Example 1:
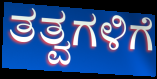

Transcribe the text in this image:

ತತ್ವಗಳಿಗೆ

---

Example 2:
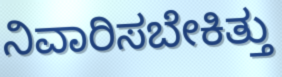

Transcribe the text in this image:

ನಿವಾರಿಸಬೇಕಿತ್ತು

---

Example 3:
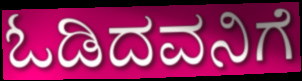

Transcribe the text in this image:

ಓಡಿದವನಿಗೆ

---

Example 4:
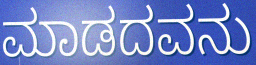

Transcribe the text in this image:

ಮಾಡದವನು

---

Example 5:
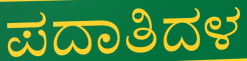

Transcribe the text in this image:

ಪದಾತಿದಳ